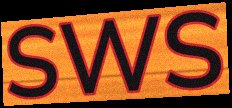
SWS